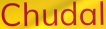
Chudal